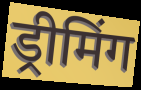
ड्रीमिंग